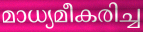
മാധ്യമീകരിച്ച